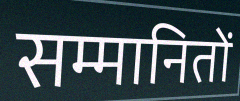
सम्मानितों